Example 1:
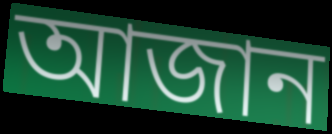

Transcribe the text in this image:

আজান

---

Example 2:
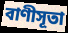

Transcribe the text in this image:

বাণীসূতা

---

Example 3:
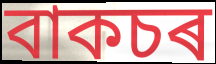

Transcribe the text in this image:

বাকচৰ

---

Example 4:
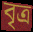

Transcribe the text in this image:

বৃত্ৰ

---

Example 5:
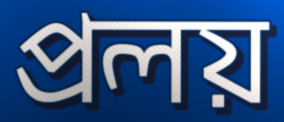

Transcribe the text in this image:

প্ৰলয়